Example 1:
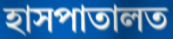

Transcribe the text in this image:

হাসপাতালত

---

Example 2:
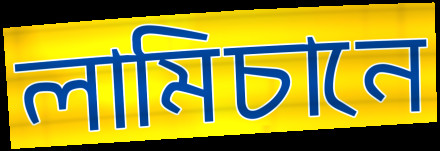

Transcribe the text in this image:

লামিচানে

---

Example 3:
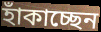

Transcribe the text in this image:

হাঁকাচ্ছেন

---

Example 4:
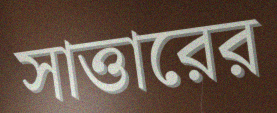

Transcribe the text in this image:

সাত্তারের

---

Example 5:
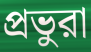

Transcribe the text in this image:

প্রভুরা